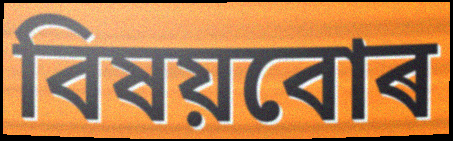
বিষয়বোৰ